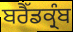
ਬਰੈੱਡਕ੍ਰੰਬ